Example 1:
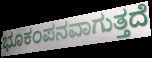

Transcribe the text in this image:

ಭೂಕಂಪನವಾಗುತ್ತದೆ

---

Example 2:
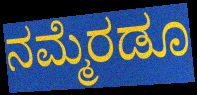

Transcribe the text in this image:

ನಮ್ಮೆರಡೂ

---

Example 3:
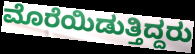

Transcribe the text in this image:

ಮೊರೆಯಿಡುತ್ತಿದ್ದರು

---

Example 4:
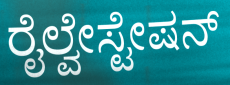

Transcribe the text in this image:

ರೈಲ್ವೇಸ್ಟೇಷನ್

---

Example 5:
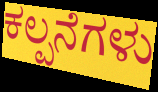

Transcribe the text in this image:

ಕಲ್ಪನೆಗಳು